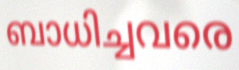
ബാധിച്ചവരെ